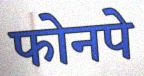
फोनपे